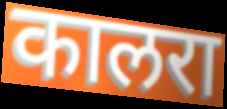
कालरा